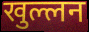
खुल्लन